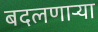
बदलणाऱ्या